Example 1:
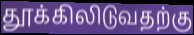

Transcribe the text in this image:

தூக்கிலிடுவதற்கு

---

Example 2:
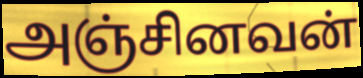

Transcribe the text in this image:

அஞ்சினவன்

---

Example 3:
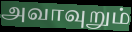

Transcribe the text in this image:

அவாவுறும்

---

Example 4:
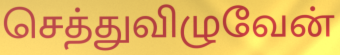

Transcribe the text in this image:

செத்துவிழுவேன்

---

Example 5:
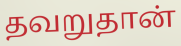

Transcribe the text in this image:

தவறுதான்